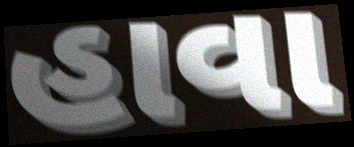
હાવા